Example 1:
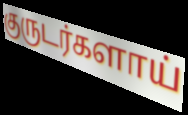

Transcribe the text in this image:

குருடர்களாய்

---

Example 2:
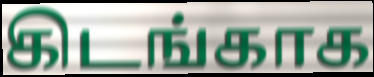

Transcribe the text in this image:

கிடங்காக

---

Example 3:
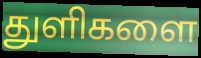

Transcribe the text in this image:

துளிகளை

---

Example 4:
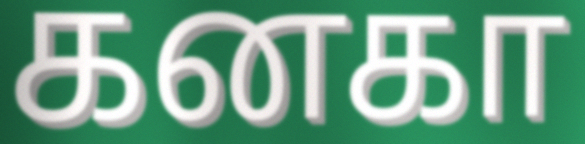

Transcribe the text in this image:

கனகா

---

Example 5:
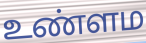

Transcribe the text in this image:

உண்ளம